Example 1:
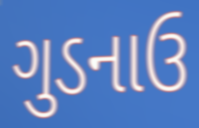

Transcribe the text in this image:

ગુડનાઉ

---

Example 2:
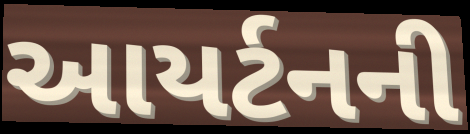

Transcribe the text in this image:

આયર્ટનની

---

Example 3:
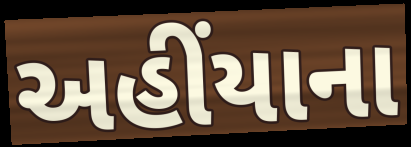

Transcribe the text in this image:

અહીંયાના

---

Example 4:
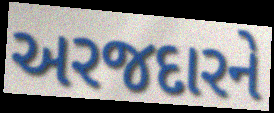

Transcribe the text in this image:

અરજદારને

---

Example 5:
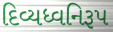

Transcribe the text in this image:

દિવ્યધ્વનિરૂપ